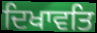
ਦਿਖਾਵਤਿ